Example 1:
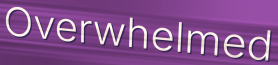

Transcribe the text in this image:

Overwhelmed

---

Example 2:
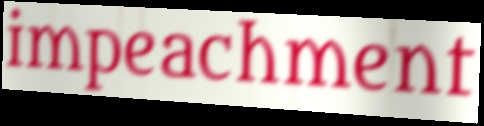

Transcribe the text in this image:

impeachment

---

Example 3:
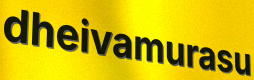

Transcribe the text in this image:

dheivamurasu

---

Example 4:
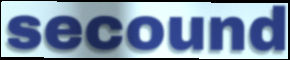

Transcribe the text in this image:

secound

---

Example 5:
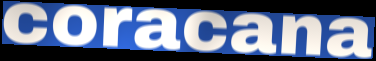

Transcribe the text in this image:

coracana